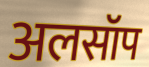
अलसॉप